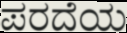
ಪರದೆಯ